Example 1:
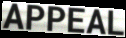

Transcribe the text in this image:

APPEAL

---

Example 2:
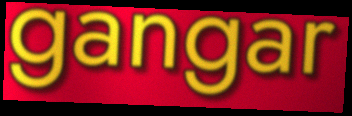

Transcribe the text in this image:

gangar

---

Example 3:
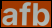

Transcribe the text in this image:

afb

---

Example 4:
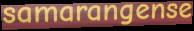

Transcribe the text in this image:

samarangense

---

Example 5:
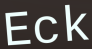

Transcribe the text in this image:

Eck